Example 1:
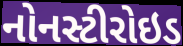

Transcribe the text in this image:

નોનસ્ટીરોઇડ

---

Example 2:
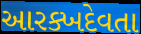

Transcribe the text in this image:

આરક્ખદેવતા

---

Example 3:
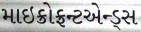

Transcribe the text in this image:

માઇક્રોફ્રન્ટએન્ડ્સ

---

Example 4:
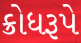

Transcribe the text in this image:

ક્રોધરૂપે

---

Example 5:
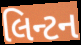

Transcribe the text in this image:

લિન્ટન